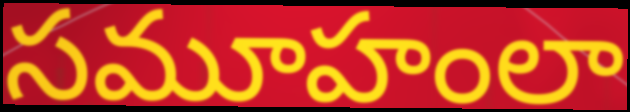
సమూహంలా